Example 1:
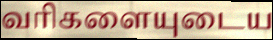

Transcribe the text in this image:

வரிகளையுடைய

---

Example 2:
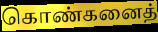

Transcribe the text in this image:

கொண்கனைத்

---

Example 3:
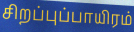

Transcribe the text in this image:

சிறப்புப்பாயிரம்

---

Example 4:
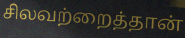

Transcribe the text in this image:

சிலவற்றைத்தான்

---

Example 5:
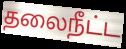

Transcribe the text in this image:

தலைநீட்ட